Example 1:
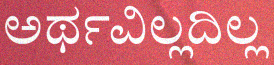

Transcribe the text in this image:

ಅರ್ಥವಿಲ್ಲದಿಲ್ಲ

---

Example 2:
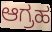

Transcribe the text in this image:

ಆಗ್ರಹ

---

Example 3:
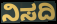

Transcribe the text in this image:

ನಿಸದಿ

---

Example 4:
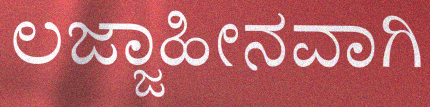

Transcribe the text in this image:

ಲಜ್ಜಾಹೀನವಾಗಿ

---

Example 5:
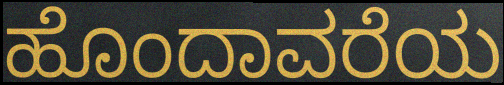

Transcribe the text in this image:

ಹೊಂದಾವರೆಯ